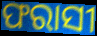
ଫରାସୀ